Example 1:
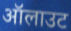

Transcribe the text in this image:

ऑलाउट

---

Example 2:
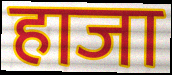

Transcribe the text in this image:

हाजा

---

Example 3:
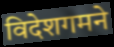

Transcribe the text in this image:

विदेशगमने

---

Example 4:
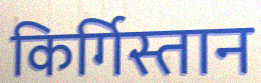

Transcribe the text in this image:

किर्गिस्‍तान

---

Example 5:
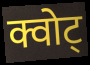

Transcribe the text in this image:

क्वोट्